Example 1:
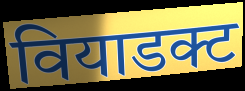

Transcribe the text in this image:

वियाडक्ट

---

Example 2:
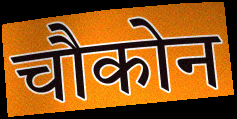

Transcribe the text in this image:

चौकोन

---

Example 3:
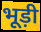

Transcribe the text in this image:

भूड़ी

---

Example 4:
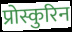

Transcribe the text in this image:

प्रोस्कुरिन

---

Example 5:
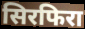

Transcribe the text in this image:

सिरफिरा